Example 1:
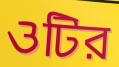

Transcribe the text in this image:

ওটির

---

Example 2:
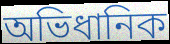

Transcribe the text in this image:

অভিধানিক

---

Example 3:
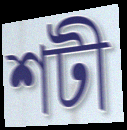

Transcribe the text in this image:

শটী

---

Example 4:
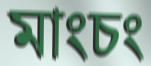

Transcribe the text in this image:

মাংচং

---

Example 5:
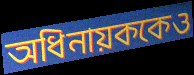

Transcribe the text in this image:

অধিনায়ককেও